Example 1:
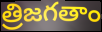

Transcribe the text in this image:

త్రిజగతాం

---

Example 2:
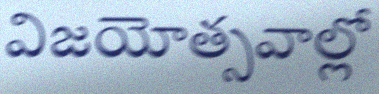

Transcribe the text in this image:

విజయోత్సవాల్లో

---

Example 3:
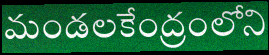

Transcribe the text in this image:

మండలకేంద్రంలోని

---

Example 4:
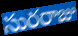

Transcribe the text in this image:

సురరాజు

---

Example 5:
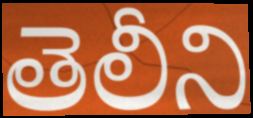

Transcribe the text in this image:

తెలీని